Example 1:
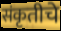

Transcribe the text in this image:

संकृतीचे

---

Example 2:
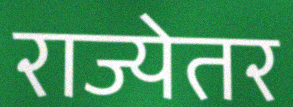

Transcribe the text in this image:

राज्येतर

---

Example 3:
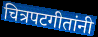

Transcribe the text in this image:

चित्रपटगीतांनी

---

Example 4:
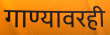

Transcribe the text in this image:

गाण्यावरही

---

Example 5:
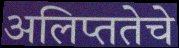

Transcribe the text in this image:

अलिप्ततेचे